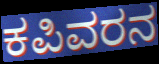
ಕಪಿವರನ